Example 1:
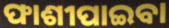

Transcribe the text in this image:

ଫାଶୀପାଇବା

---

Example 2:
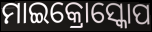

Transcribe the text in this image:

ମାଇକ୍ରୋସ୍କୋପ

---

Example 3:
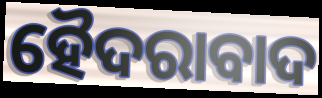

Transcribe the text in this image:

ହୈଦରାବାଦ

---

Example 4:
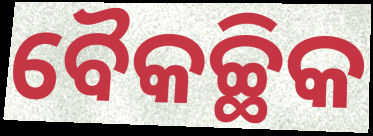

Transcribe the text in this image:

ବୈକଚ୍ଛିକ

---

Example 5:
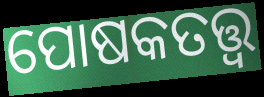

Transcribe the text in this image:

ପୋଷକତତ୍ତ୍ବ